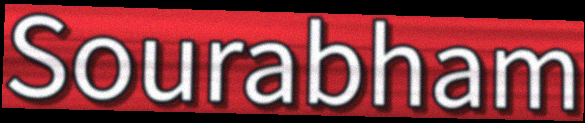
Sourabham